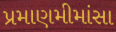
પ્રમાણમીમાંસા